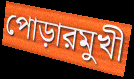
পোড়ারমুখী